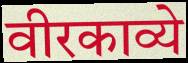
वीरकाव्ये